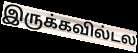
இருக்கவில்டல